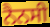
ਨੈਨਸੀ